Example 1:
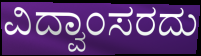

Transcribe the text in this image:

ವಿದ್ವಾಂಸರದು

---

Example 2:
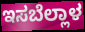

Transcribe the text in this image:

ಇಸಬೆಲ್ಲಾಳ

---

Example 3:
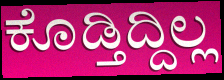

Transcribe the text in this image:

ಕೊಡ್ತಿದ್ದಿಲ್ಲ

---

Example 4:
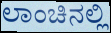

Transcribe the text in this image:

ಲಾಂಚಿನಲ್ಲಿ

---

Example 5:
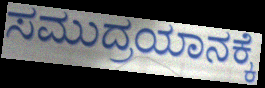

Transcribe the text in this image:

ಸಮುದ್ರಯಾನಕ್ಕೆ